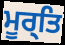
ਮੂਰ੍ਤਿ